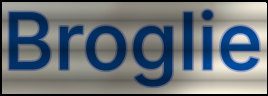
Broglie